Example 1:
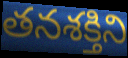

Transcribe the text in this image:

తనశక్తిని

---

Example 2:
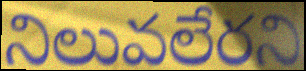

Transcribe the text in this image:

నిలువలేరని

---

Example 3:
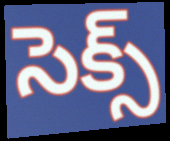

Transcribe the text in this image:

సెక్స్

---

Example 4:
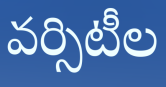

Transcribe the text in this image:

వర్సిటీల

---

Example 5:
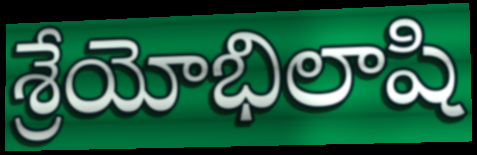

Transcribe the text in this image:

శ్రేయోభిలాషి